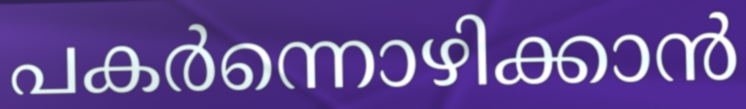
പകർന്നൊഴിക്കാൻ